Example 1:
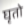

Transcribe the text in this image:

घृतो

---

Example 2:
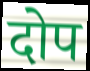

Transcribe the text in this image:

दोप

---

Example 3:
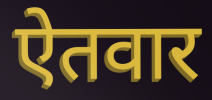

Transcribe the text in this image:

ऐतवार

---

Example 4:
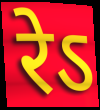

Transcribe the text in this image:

रेऽ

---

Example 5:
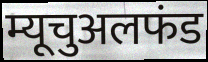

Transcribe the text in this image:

म्यूचुअलफंड